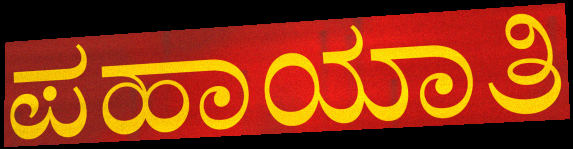
ಪಹಾಯಾತಿ